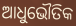
ଆଧୁଭୌତିକ